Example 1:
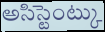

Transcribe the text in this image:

అసిస్టెంట్కు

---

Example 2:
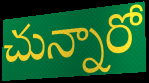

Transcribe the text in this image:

చున్నారో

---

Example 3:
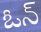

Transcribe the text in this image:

ఓన్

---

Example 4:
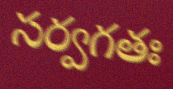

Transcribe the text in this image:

సర్వగతః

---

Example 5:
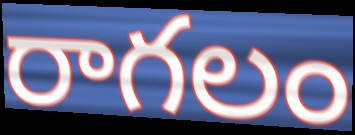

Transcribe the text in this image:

రాగలం